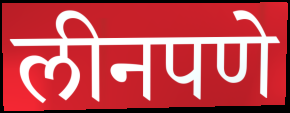
लीनपणे